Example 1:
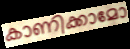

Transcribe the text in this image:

കാണിക്കാമോ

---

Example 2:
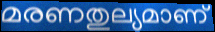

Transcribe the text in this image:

മരണതുല്യമാണ്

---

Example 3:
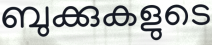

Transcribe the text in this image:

ബുക്കുകളുടെ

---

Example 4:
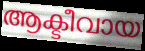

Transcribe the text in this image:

ആക്ടീവായ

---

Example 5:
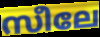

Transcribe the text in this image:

സീലേ